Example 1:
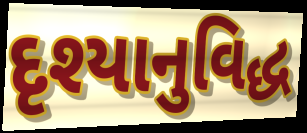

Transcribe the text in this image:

દૃશ્યાનુવિદ્ધ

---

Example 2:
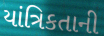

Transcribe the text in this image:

યાંત્રિકતાની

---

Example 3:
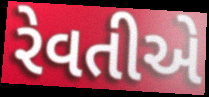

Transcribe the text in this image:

રેવતીએ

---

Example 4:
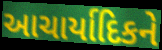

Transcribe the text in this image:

આચાર્યાદિકને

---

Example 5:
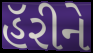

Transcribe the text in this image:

હૅરીને